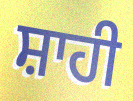
ਸ਼ਾਹੀ